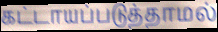
கட்டாயப்படுத்தாமல்